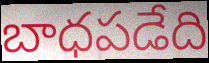
బాధపడేది